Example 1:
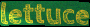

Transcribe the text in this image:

lettuce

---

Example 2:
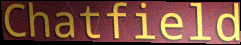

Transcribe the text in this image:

Chatfield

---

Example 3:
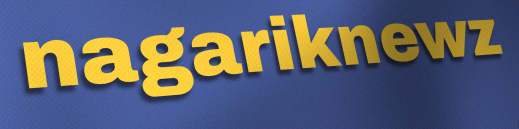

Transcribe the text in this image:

nagariknewz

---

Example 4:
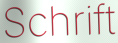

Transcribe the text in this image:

Schrift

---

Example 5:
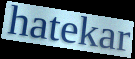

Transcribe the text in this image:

hatekar